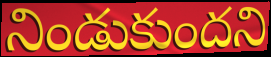
నిండుకుందని